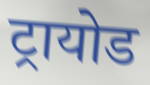
ट्रायोड